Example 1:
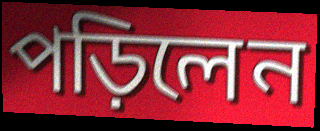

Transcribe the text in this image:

পড়িলেন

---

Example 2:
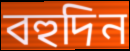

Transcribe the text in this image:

বহুদিন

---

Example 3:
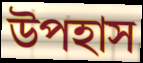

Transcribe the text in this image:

উপহাস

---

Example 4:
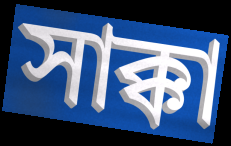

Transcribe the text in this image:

সাক্কা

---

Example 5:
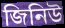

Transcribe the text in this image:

জিনিউ